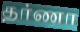
தர்ணா